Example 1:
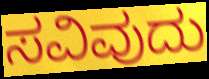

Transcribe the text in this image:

ಸವಿವುದು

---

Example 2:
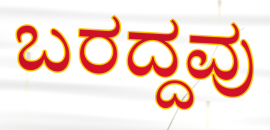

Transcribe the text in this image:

ಬರದ್ದವು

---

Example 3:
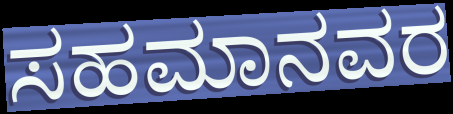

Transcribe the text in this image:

ಸಹಮಾನವರ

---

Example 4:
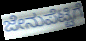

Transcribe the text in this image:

ಜೇನುಪೆಟ್ಟಿಗೆ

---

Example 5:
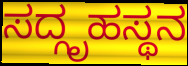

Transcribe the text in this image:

ಸದ್ಗೃಹಸ್ಥನ